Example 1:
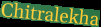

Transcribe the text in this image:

Chitralekha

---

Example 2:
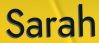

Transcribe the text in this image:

Sarah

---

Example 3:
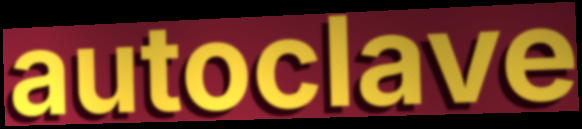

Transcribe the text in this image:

autoclave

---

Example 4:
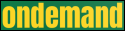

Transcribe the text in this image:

ondemand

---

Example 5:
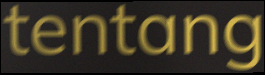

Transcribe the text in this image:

tentang